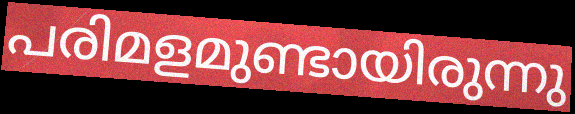
പരിമളമുണ്ടായിരുന്നു